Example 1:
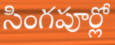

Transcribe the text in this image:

సింగపూర్లో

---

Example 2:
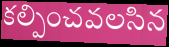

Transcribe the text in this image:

కల్పించవలసిన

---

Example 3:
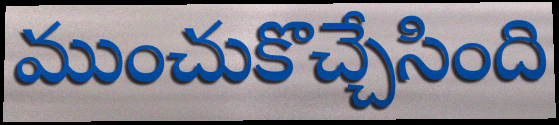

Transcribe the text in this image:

ముంచుకొచ్చేసింది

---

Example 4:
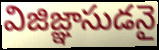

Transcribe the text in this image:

విజిజ్ఞాసుడనై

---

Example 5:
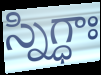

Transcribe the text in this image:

స్నిగ్ధాః